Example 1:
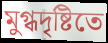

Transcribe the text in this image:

মুগ্ধদৃষ্টিতে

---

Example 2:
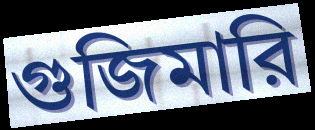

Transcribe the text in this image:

গুজিমারি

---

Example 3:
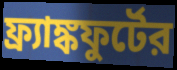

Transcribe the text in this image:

ফ্র্যাঙ্কফুর্টের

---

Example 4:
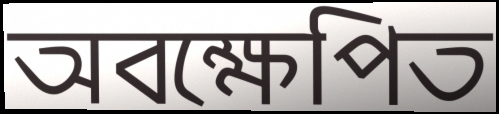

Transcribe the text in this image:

অবক্ষেপিত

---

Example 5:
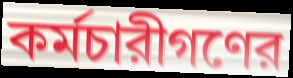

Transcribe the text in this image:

কর্মচারীগণের